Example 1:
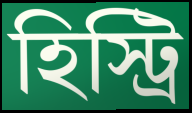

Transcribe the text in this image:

হিস্ট্রি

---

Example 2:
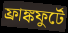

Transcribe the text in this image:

ফ্রাঙ্কফুর্টে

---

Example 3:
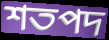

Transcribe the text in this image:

শতপদ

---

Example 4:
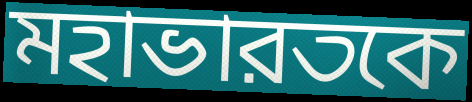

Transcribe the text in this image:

মহাভারতকে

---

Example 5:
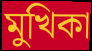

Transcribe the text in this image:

মুখিকা